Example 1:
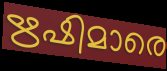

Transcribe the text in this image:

ഋഷിമാരെ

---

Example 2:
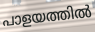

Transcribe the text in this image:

പാളയത്തിൽ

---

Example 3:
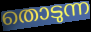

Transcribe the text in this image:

തൊടുന്ന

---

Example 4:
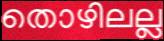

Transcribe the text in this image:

തൊഴിലല്ല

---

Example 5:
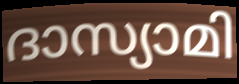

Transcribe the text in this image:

ദാസ്യാമി